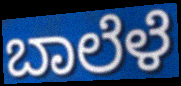
ಬಾಲೆಳೆ